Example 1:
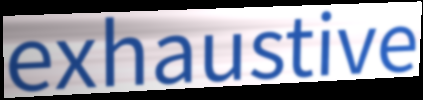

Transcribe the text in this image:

exhaustive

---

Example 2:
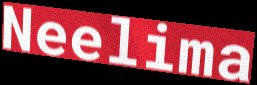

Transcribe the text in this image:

Neelima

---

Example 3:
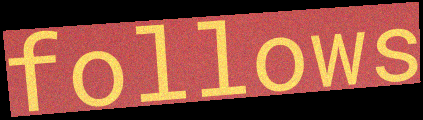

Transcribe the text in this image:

follows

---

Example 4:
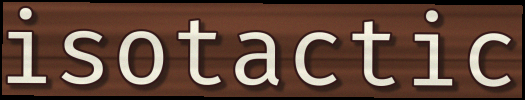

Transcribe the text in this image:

isotactic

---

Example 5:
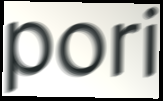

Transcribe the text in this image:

pori